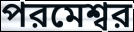
পরমেশ্বর